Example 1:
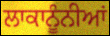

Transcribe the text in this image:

ਲਾਕਾਨੂੰਨੀਆਂ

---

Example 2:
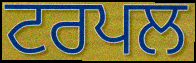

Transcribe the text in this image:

ਟਰਪਲ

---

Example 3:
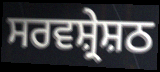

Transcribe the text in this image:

ਸਰਵਸ਼੍ਰੇਸ਼ਠ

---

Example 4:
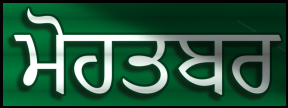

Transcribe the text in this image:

ਮੋਹਤਬਰ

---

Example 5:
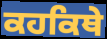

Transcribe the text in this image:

ਕਹਕਿਥੇ